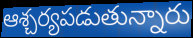
ఆశ్చర్యపడుతున్నారు